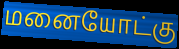
மனையோட்கு